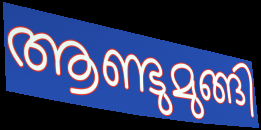
ആണ്ടുമുങ്ങി